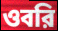
ওবরি